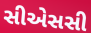
સીએસસી